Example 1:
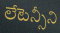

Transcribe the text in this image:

లేటెన్సీని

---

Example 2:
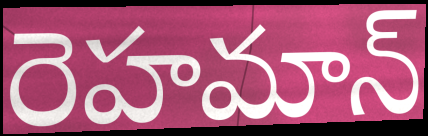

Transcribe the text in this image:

రెహమాన్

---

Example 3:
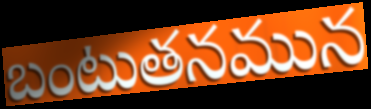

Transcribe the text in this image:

బంటుతనమున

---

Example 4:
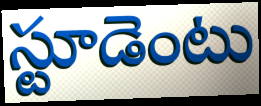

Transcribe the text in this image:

స్టూడెంటు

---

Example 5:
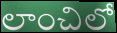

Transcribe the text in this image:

లాంచిలో